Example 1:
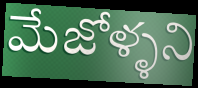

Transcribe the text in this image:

మేజోళ్ళని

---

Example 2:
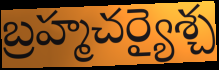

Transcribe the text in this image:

బ్రహ్మచర్యైశ్చ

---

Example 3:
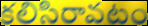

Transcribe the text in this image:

కలిసిరావటం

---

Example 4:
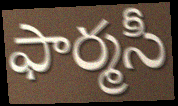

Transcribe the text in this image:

ఫార్మసీ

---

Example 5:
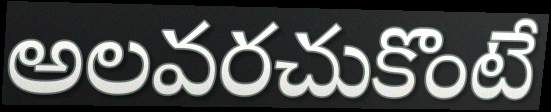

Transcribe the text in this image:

అలవరచుకొంటే